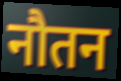
नौतन